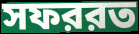
সফররত